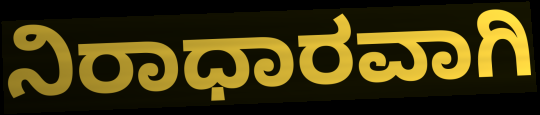
ನಿರಾಧಾರವಾಗಿ